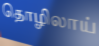
தொழிலாய்